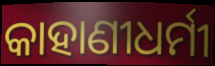
କାହାଣୀଧର୍ମୀ